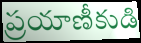
ప్రయాణీకుడి